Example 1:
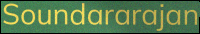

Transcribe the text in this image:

Soundararajan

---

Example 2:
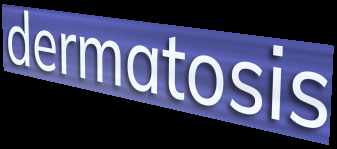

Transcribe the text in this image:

dermatosis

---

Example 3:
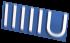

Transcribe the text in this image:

IIIIIU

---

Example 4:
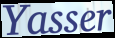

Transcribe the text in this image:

Yasser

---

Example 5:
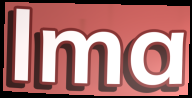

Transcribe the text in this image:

Ima